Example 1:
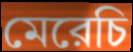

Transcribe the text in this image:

মেরেচি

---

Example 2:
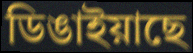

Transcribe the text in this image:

ডিঙাইয়াছে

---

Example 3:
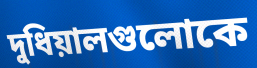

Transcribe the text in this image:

দুধিয়ালগুলোকে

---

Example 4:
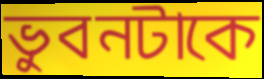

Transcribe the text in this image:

ভুবনটাকে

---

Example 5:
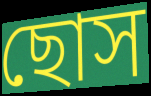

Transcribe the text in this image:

ছোস